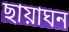
ছায়াঘন